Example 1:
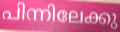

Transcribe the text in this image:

പിന്നിലേക്കു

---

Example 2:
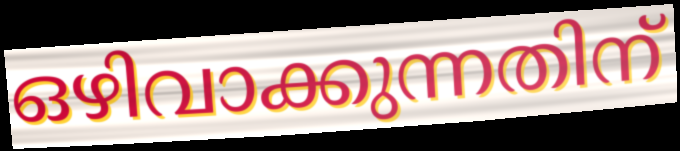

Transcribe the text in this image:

ഒഴിവാക്കുന്നതിന്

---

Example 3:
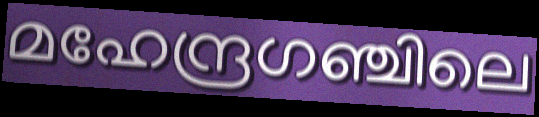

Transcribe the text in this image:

മഹേന്ദ്രഗഞ്ചിലെ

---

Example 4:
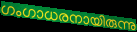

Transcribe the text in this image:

ഗംഗാധരനായിരുന്നു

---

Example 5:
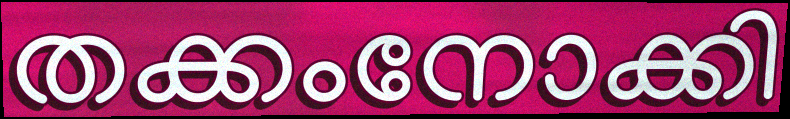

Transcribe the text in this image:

തക്കംനോക്കി